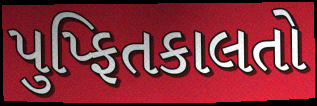
પુપ્ફિતકાલતો